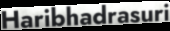
Haribhadrasuri